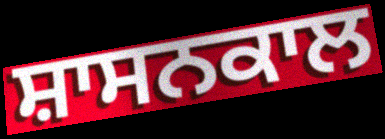
ਸ਼ਾਸਨਕਾਲ